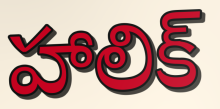
హాలిక్